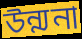
উন্মনা